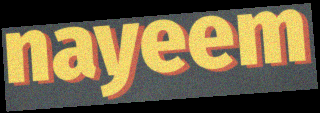
nayeem